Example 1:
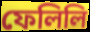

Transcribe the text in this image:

ফেলিলি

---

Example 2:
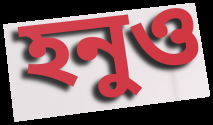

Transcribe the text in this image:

হনুও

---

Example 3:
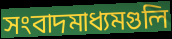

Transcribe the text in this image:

সংবাদমাধ্যমগুলি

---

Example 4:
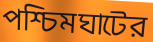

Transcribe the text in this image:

পশ্চিমঘাটের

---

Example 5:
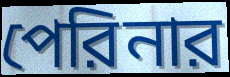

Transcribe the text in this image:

পেরিনার